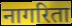
नागरिता